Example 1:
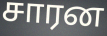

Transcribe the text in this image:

சாரன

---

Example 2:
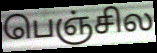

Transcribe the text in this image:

பெஞ்சில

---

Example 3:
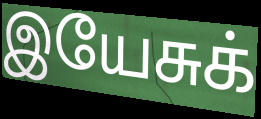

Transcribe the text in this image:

இயேசுக்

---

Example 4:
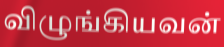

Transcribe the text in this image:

விழுங்கியவன்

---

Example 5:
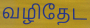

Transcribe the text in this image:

வழிதேட